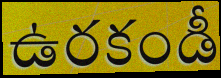
ఉరకండీ